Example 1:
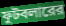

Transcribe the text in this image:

ফুটবলারের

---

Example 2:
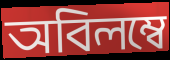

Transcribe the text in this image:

অবিলম্বে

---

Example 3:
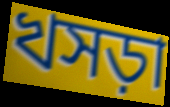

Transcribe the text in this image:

খসড়া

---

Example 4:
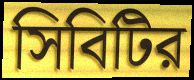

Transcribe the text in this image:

সিবিটির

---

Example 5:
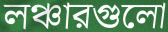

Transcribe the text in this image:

লঞ্চারগুলো